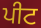
ਪੀਟ